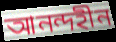
আনন্দহীন